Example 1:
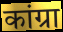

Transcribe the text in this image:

कांग्रा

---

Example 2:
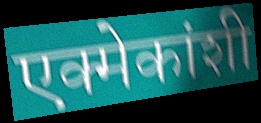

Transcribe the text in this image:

एक्मेकांशी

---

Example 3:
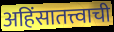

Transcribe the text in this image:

अहिंसातत्त्वाची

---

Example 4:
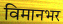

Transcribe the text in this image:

विमानभर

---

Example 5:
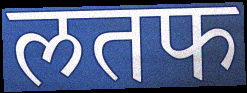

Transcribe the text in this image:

लतफ